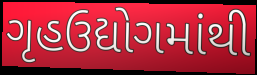
ગૃહઉદ્યોગમાંથી